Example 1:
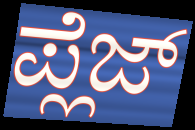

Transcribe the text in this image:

ಪ್ಲೆಜ್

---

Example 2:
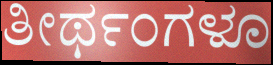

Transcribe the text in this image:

ತೀರ್ಥಂಗಳೂ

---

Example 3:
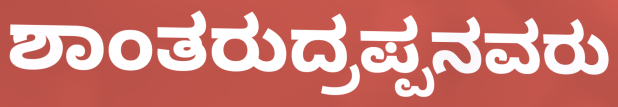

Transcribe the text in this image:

ಶಾಂತರುದ್ರಪ್ಪನವರು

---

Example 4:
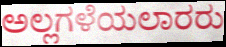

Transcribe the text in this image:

ಅಲ್ಲಗಳೆಯಲಾರರು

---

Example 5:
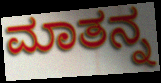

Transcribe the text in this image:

ಮಾತನ್ನ